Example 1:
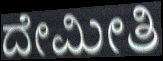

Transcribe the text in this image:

ದೇಮೀತಿ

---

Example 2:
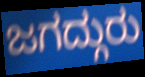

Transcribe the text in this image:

ಜಗದ್ಗುರು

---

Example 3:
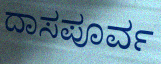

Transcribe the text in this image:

ದಾಸಪೂರ್ವ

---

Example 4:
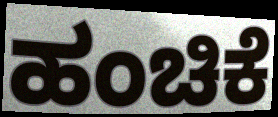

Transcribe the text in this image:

ಹಂಚಿಕೆ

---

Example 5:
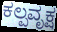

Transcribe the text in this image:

ಕಲ್ಪವೃಕ್ಷ